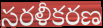
సరళీకరణ